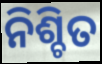
ନିଶ୍ଚିତ